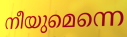
നീയുമെന്നെ